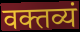
वक्तव्यं